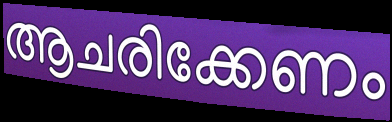
ആചരിക്കേണം